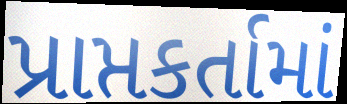
પ્રાપ્તકર્તામાં